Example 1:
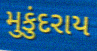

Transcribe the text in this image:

મુકુંદરાય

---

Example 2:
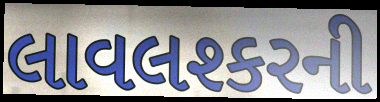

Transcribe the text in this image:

લાવલશ્કરની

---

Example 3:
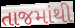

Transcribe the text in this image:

તાજમાંથી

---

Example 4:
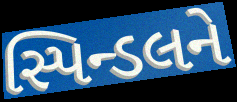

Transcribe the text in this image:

સ્પિન્ડલને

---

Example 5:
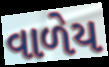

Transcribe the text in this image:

વાળેય